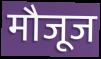
मौजूज